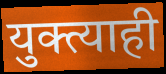
युक्त्याही